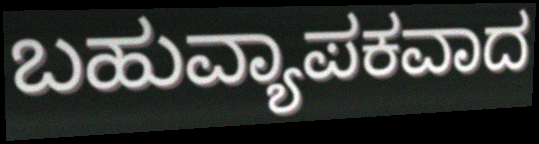
ಬಹುವ್ಯಾಪಕವಾದ